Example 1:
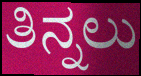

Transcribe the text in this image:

ತಿನ್ನಲು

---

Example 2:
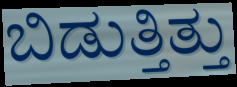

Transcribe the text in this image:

ಬಿಡುತ್ತಿತ್ತು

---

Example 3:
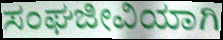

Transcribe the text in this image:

ಸಂಘಜೀವಿಯಾಗಿ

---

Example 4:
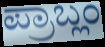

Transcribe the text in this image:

ಪ್ರಾಬ್ಲಂ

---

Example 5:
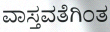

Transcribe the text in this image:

ವಾಸ್ತವತೆಗಿಂತ